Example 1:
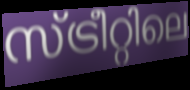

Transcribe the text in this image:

സ്ട്രീറ്റിലെ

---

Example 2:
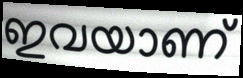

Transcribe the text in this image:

ഇവയാണ്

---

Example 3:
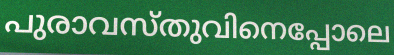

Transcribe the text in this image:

പുരാവസ്തുവിനെപ്പോലെ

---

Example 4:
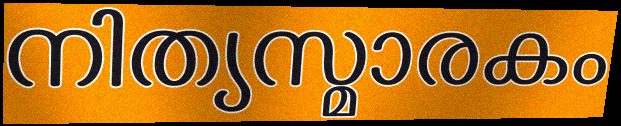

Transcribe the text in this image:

നിത്യസ്മാരകം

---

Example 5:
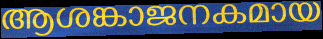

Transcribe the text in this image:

ആശങ്കാജനകമായ